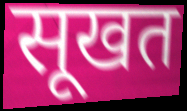
सूखत